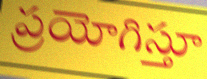
ప్రయోగిస్తూ